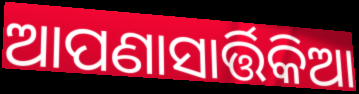
ଆପଣାସାର୍ତ୍ତିକିଆ